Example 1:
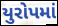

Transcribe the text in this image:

યુરોપમાં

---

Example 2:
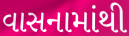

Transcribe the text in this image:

વાસનામાંથી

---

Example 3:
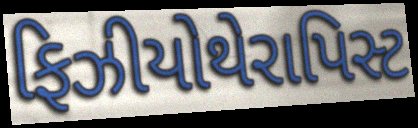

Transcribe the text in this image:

ફિઝીયોથેરાપિસ્ટ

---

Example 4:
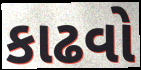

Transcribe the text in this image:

કાઢવો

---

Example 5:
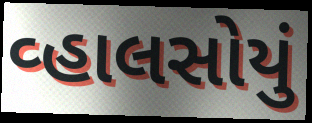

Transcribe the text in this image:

વ્હાલસોયું